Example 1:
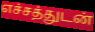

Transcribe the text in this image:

எச்சத்துடன்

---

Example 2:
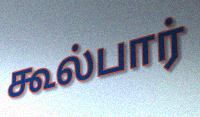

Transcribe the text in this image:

கூல்பார்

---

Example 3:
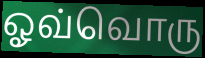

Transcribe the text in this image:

ஓவ்வொரு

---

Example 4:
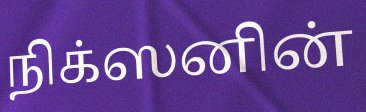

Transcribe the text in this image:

நிக்ஸனின்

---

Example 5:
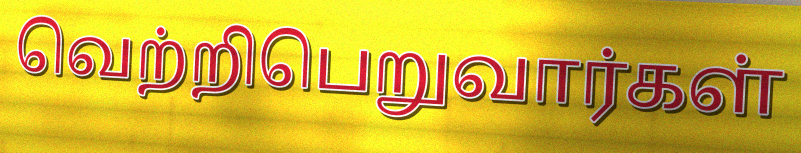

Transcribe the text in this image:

வெற்றிபெறுவார்கள்